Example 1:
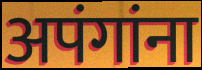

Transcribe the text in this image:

अपंगांना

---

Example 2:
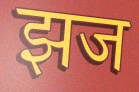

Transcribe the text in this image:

झज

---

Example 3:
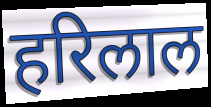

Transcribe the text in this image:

हरिलाल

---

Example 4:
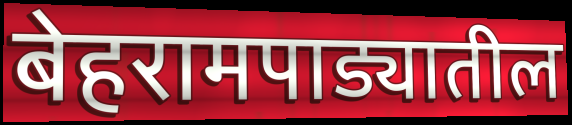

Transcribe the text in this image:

बेहरामपाड्यातील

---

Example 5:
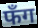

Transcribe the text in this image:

फँग